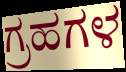
ಗ್ರಹಗಳ